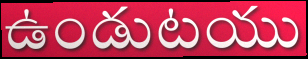
ఉండుటయు